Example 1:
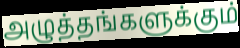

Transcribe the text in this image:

அழுத்தங்களுக்கும்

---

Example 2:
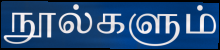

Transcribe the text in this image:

நூல்களும்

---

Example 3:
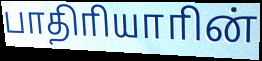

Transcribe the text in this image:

பாதிரியாரின்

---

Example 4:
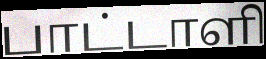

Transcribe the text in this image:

பாட்டாளி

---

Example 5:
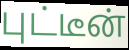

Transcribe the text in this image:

புட்டீன்